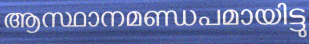
ആസ്ഥാനമണ്ഡപമായിട്ടു